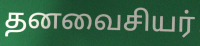
தனவைசியர்